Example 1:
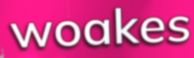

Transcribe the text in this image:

woakes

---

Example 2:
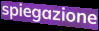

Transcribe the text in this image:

spiegazione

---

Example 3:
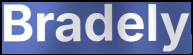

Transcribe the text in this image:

Bradely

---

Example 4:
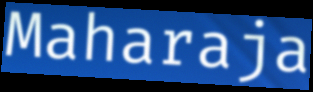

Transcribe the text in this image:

Maharaja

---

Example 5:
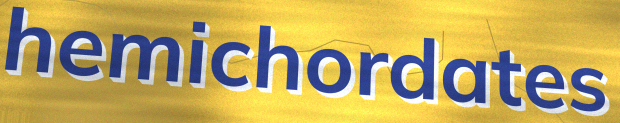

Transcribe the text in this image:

hemichordates